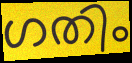
ഗതിം